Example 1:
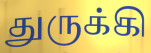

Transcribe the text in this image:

துருக்கி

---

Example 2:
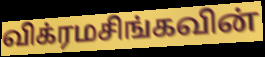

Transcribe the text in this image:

விக்ரமசிங்கவின்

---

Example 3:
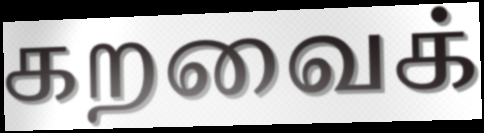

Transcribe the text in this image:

கறவைக்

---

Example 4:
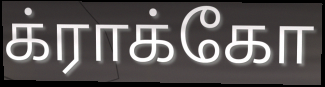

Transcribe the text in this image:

க்ராக்கோ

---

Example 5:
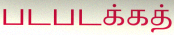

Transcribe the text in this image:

படபடக்கத்